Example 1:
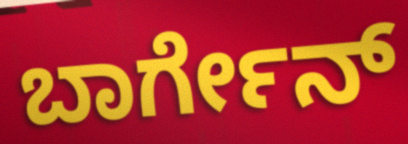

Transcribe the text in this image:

ಬಾರ್ಗೇನ್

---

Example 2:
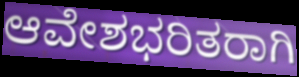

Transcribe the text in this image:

ಆವೇಶಭರಿತರಾಗಿ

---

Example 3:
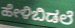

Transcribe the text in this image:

ಹೇಳಿಬಿಡಲೆ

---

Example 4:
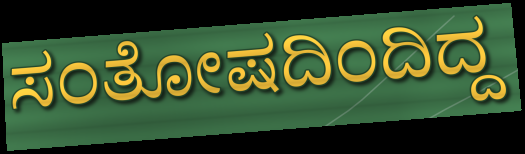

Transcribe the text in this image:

ಸಂತೋಷದಿಂದಿದ್ದ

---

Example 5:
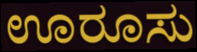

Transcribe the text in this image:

ಊರೂಸು